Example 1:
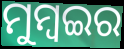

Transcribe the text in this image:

ମୁମ୍ବଇର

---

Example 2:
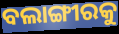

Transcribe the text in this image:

ବଲାଙ୍ଗୀରକୁ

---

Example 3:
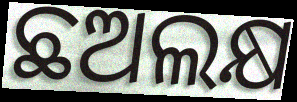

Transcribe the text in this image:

ଛଅଲକ୍ଷ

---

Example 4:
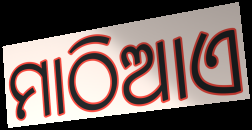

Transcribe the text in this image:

ମାଠିଆଏ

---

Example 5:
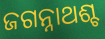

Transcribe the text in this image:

ଜଗନ୍ନାଥଶ୍ଚ